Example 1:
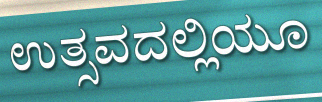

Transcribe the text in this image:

ಉತ್ಸವದಲ್ಲಿಯೂ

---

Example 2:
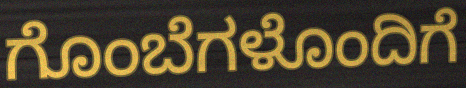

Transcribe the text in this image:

ಗೊಂಬೆಗಳೊಂದಿಗೆ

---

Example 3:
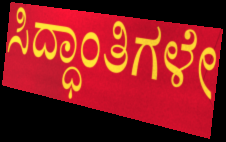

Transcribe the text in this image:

ಸಿದ್ಧಾಂತಿಗಳೇ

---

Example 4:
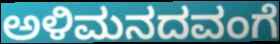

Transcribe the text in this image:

ಅಳಿಮನದವಂಗೆ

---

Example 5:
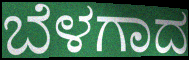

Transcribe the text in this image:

ಬೆಳಗಾದ